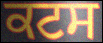
ਕਟਸ